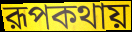
রূপকথায়